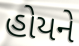
હોયને